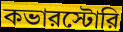
কভারস্টোরি